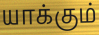
யாக்கும்